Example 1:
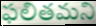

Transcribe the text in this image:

ఫలితమని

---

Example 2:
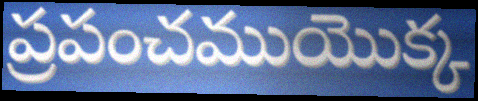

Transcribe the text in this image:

ప్రపంచముయొక్క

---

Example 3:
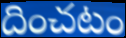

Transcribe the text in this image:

దించటం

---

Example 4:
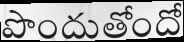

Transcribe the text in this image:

పొందుతోందో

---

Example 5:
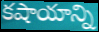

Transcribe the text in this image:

కషాయాన్ని